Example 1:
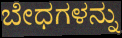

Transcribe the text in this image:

ಬೇಧಗಳನ್ನು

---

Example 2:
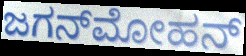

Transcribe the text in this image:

ಜಗನ್‌ಮೋಹನ್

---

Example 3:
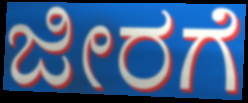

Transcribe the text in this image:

ಜೀರಗೆ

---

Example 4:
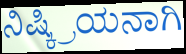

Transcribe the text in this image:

ನಿಷ್ಕ್ರಿಯನಾಗಿ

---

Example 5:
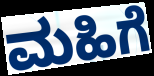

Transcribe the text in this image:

ಮಹಿಗೆ